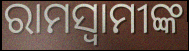
ରାମସ୍ୱାମୀଙ୍କ